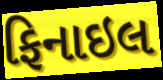
ફિનાઇલ